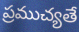
ప్రముచ్యతే